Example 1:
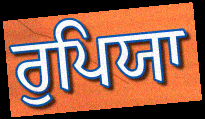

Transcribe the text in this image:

ਰੁਪਿਯਾ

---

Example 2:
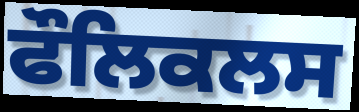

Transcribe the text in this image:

ਫੌਲਿਕਲਸ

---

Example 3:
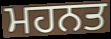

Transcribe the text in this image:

ਮਹਨਤ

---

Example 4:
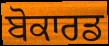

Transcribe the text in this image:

ਬੋਕਾਰਡ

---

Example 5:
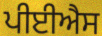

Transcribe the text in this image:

ਪੀਈਐਸ